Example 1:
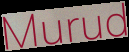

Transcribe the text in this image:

Murud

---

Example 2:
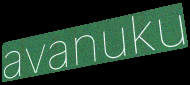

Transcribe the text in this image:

avanuku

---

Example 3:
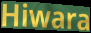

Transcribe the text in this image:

Hiwara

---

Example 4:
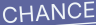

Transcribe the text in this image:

CHANCE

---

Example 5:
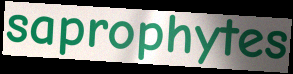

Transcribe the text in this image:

saprophytes